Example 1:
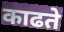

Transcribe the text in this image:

काढते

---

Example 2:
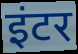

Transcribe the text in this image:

इंटर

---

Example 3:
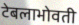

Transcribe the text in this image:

टेबलाभोवती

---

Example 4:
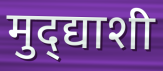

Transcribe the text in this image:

मुद्द्याशी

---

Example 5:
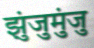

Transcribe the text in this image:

झुंजुमुंजु